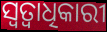
ସ୍ବତ୍ବାଧିକାରୀ